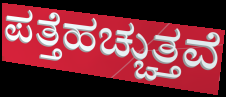
ಪತ್ತೆಹಚ್ಚುತ್ತವೆ